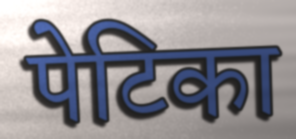
पेटिका